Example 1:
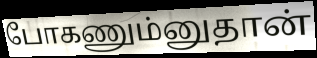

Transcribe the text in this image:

போகணும்னுதான்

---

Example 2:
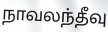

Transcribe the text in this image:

நாவலந்தீவு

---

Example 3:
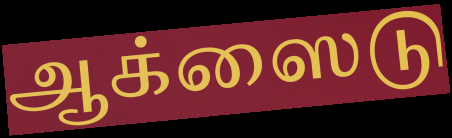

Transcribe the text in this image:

ஆக்ஸைடு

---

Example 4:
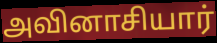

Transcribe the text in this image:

அவினாசியார்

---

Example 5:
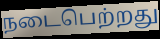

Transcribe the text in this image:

நடைபெற்றது